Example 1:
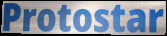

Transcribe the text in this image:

Protostar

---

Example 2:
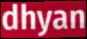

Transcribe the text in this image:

dhyan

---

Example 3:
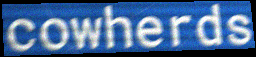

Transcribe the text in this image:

cowherds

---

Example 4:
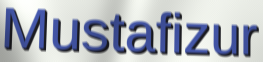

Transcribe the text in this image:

Mustafizur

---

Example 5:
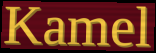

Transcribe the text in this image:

Kamel